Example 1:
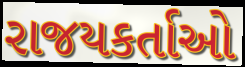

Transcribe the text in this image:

રાજયકર્તાઓ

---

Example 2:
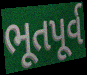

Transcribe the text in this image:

ભૂતપૂર્વ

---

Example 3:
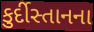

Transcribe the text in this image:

કુર્દીસ્તાનના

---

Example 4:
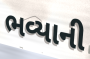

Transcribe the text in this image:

ભવ્યાની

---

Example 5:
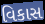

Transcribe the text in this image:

વિકાસ